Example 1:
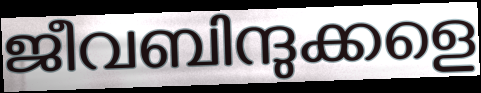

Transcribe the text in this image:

ജീവബിന്ദുക്കളെ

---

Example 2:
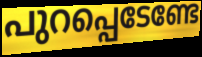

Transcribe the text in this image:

പുറപ്പെടേണ്ടേ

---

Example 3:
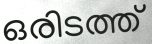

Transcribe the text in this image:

ഒരിടത്ത്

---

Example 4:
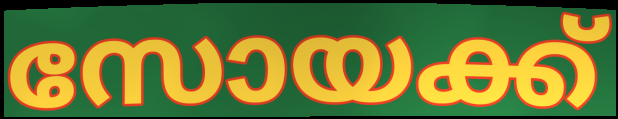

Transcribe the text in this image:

സോയക്ക്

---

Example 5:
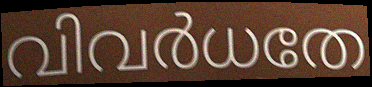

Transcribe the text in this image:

വിവർധതേ